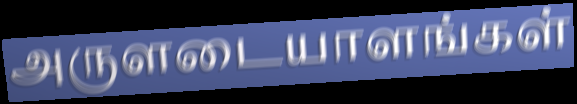
அருளடையாளங்கள்